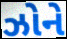
ઝોને